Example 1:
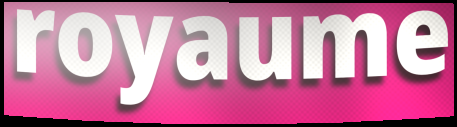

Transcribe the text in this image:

royaume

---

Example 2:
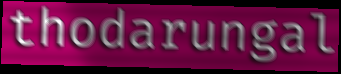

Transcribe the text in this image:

thodarungal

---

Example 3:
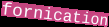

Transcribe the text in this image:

fornication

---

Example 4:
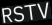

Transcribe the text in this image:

RSTV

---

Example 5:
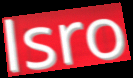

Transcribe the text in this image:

Isro